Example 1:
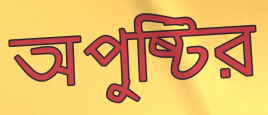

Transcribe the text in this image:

অপুষ্টির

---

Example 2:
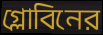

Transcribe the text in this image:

গ্লোবিনের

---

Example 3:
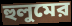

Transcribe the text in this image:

হুলুমের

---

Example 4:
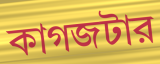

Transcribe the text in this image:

কাগজটার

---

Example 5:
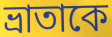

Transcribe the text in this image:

ভ্রাতাকে